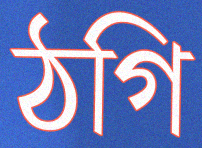
ঠগি